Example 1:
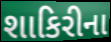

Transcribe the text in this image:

શાકિરીના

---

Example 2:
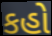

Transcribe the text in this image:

કહો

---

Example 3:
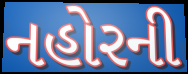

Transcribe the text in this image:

નહોરની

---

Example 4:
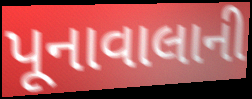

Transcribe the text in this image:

પૂનાવાલાની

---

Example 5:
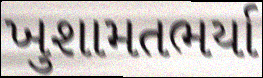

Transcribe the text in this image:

ખુશામતભર્યા